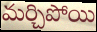
మర్చిపోయి